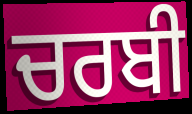
ਚਰਬੀ